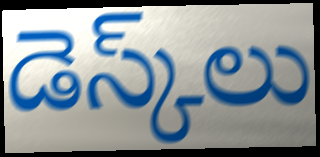
డెస్క్‌లు